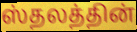
ஸ்தலத்தின்